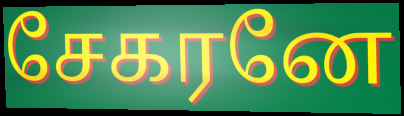
சேகரனே